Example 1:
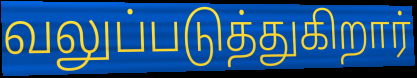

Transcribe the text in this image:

வலுப்படுத்துகிறார்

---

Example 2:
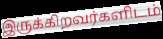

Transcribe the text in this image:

இருக்கிறவர்களிடம்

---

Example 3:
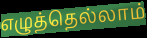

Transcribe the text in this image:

எழுத்தெல்லாம்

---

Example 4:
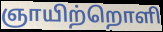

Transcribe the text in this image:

ஞாயிற்றொளி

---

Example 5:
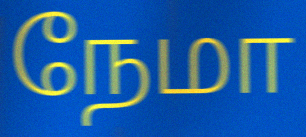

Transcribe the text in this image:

நேமா